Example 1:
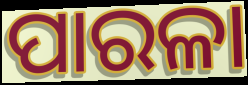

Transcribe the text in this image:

ପାରଳା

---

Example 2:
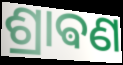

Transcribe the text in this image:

ଶ୍ରାଵଣ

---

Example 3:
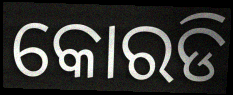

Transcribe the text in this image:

କୋରଡି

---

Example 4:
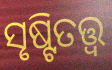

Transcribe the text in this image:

ସୃଷ୍ଟିତତ୍ତ୍ୱ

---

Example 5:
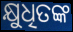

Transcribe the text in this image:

କ୍ଷୁଧିତଙ୍କ